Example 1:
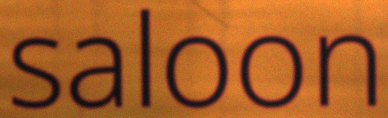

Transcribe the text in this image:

saloon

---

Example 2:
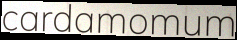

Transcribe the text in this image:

cardamomum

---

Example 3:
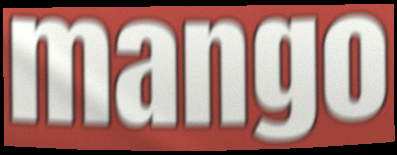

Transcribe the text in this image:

mango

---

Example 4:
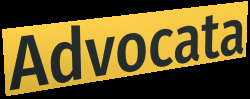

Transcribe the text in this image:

Advocata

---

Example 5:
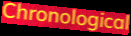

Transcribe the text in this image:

Chronological